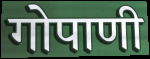
गोपाणी